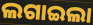
ଲଗାଇଲା